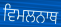
ਵਿਮਲਨਾਥ